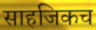
साहजिकच